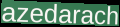
azedarach